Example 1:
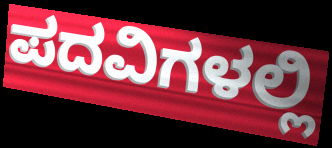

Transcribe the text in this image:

ಪದವಿಗಳಲ್ಲಿ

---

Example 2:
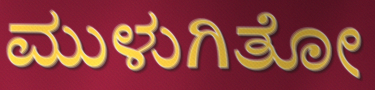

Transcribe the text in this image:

ಮುಳುಗಿತೋ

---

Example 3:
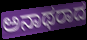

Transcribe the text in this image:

ಅನಾಥರಾದ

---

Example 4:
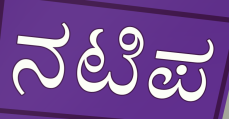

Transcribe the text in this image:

ನಟಿಪ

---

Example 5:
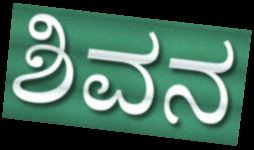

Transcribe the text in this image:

ಶಿವನ